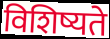
विशिष्यते